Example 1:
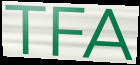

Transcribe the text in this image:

TFA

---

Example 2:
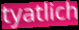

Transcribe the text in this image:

tyatlich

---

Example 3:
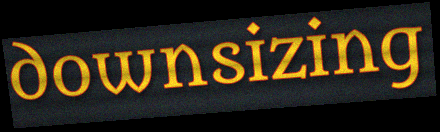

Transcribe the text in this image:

downsizing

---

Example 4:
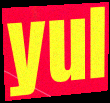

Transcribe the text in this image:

yul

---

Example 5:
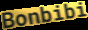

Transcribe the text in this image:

Bonbibi